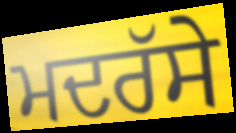
ਮਦਰੱਸੇ